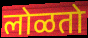
लोळतो